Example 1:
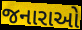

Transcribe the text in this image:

જનારાઓ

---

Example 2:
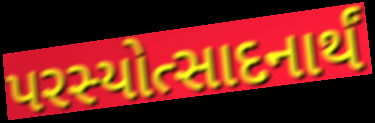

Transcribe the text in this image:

પરસ્યોત્સાદનાર્થં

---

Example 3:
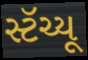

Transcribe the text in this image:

સ્ટૅચ્યૂ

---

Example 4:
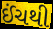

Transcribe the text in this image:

ઈંચથી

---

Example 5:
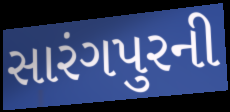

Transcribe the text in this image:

સારંગપુરની